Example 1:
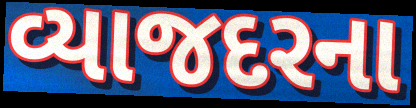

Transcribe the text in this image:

વ્યાજદરના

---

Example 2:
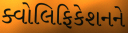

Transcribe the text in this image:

ક્વોલિફિકેશનને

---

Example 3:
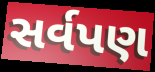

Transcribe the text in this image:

સર્વપણ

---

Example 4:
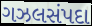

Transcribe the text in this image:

ગઝલસંપદા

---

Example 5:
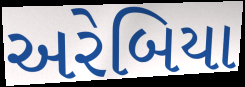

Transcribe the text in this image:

અરેબિયા